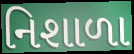
નિશાળા